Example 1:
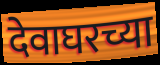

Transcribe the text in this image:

देवाघरच्या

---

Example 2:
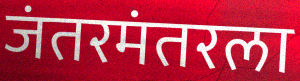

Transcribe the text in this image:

जंतरमंतरला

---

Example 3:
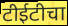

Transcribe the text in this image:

टीईटीचा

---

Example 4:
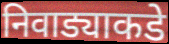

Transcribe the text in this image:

निवाड्याकडे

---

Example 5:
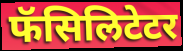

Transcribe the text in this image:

फॅसिलिटेटर